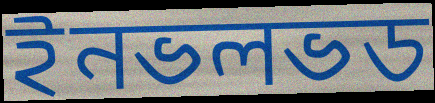
ইনভলভড